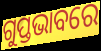
ଗୁପ୍ତଭାବରେ